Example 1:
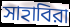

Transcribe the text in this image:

সাহাবিরা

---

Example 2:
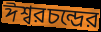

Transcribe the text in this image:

ঈশ্বরচন্দ্রের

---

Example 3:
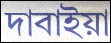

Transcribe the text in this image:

দাবাইয়া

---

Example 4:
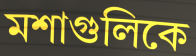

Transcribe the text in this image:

মশাগুলিকে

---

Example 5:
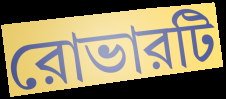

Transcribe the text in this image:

রোভারটি